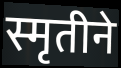
स्मृतीने